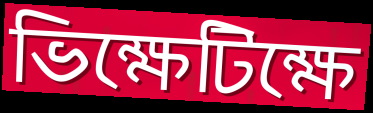
ভিক্ষেটিক্ষে